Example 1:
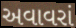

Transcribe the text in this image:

અવાવરાં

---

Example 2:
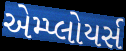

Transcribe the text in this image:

એમ્પ્લોયર્સ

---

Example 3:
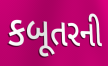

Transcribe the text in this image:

કબૂતરની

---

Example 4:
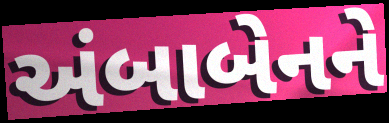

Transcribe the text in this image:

અંબાબેનને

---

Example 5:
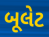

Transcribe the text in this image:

બૂલેટ